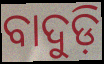
ବାଦୁଡ଼ି